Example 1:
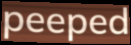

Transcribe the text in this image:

peeped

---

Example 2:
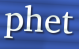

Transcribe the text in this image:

phet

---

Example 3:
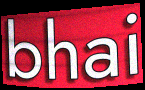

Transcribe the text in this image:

bhai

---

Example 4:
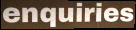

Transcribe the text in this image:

enquiries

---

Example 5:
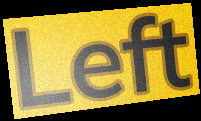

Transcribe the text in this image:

Left